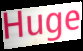
Huge